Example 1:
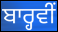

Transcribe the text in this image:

ਬਾਰ੍ਹਵੀਂ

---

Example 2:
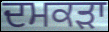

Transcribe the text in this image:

ਦਮਕੜਾ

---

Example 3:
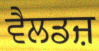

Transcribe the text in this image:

ਵੈਲਡਜ਼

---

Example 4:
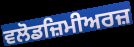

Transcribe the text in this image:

ਵਲੋਡਜ਼ਿਮੀਅਰਜ਼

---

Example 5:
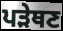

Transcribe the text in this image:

ਪੜੇਥਣ